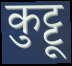
कुट्टू